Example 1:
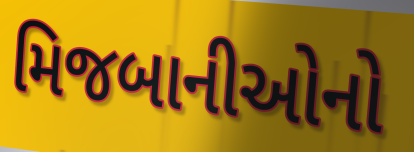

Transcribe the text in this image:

મિજબાનીઓનો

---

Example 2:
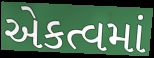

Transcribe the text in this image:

એકત્વમાં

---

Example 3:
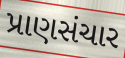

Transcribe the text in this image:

પ્રાણસંચાર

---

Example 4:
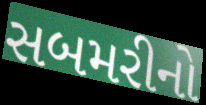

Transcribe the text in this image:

સબમરીનો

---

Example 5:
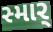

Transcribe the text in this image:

સ્માર્